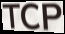
TCP